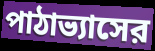
পাঠাভ্যাসের